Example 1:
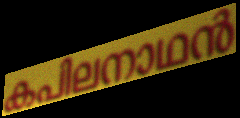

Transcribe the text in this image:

കപിലനാഥൻ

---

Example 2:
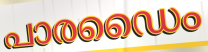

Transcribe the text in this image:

പാരഡൈം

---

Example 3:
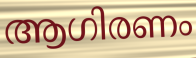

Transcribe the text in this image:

ആഗിരണം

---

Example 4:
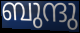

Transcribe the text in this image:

ബുന്ദു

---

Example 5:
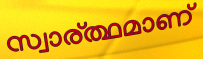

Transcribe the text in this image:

സ്വാര്ത്ഥമാണ്